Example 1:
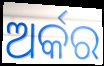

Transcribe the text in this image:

ଅର୍କର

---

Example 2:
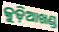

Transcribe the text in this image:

କୁଡ଼ିଆଖଣ୍ଡ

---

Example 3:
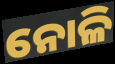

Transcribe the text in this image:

ନୋଳି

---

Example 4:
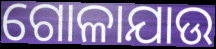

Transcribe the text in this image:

ଗୋଳାଯାଉ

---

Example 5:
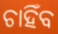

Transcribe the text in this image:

ଚାହିଁବ